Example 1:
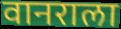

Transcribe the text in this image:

वानराला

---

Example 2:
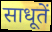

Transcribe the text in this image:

साधूतें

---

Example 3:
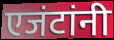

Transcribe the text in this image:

एजंटांनी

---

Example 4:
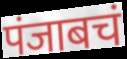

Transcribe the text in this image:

पंजाबचं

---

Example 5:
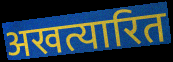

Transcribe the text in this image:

अखत्यारित